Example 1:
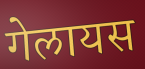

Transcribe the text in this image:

गेलायस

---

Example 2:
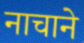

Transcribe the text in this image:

नाचाने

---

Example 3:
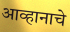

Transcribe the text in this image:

आव्हानाचे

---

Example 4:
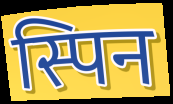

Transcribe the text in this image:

स्पिन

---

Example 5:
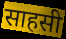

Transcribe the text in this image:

साहसी